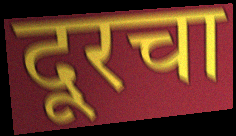
दूरचा